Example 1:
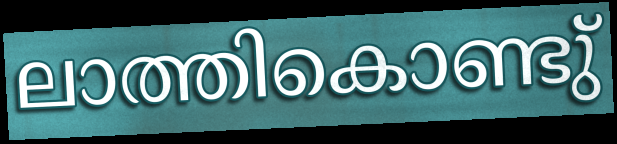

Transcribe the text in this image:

ലാത്തികൊണ്ടു്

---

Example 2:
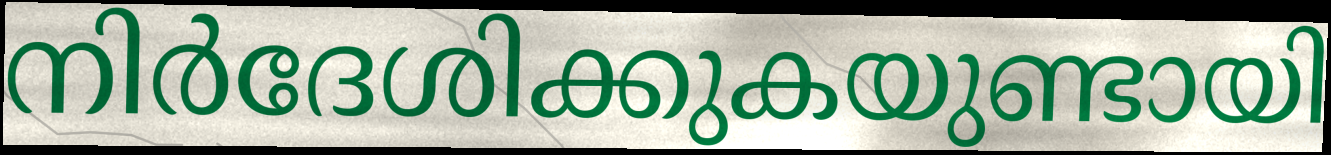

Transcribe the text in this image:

നിർദേശിക്കുകയുണ്ടായി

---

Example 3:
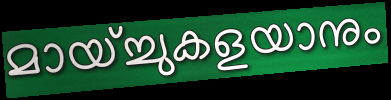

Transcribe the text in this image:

മായ്ച്ചുകളയാനും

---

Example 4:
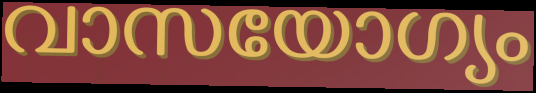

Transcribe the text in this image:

വാസയോഗ്യം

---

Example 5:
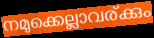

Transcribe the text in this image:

നമുക്കെല്ലാവര്ക്കും